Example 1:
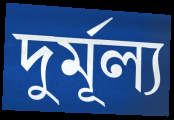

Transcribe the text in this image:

দুর্মূল্য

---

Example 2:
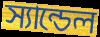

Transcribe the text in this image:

স্যান্ডেল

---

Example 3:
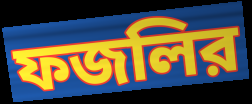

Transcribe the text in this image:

ফজলির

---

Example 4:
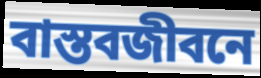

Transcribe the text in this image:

বাস্তবজীবনে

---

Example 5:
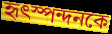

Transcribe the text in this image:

হৃৎস্পন্দনকে